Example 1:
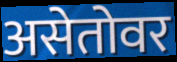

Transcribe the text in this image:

असेतोवर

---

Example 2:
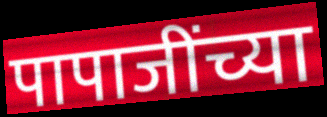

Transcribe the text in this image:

पापाजींच्या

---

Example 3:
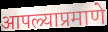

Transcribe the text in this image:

आपल्याप्रमाणे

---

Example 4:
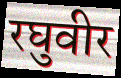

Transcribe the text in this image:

रघुवीर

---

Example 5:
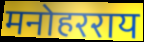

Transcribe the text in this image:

मनोहरराय